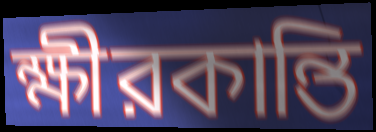
ক্ষীরকান্তি